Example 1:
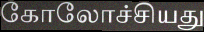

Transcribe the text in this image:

கோலோச்சியது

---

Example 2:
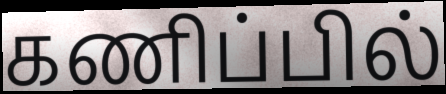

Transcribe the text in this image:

கணிப்பில்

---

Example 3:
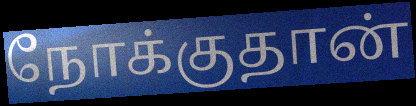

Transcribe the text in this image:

நோக்குதான்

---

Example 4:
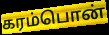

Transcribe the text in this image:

கரம்பொன்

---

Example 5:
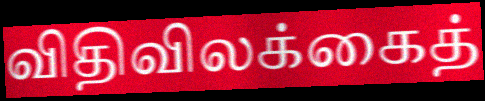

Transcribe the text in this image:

விதிவிலக்கைத்